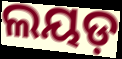
ଲୟଡ଼